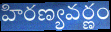
హిరణ్యవర్ణం